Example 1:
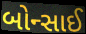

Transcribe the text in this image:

બોન્સાઈ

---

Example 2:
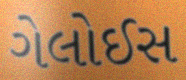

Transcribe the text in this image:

ગેલોઈસ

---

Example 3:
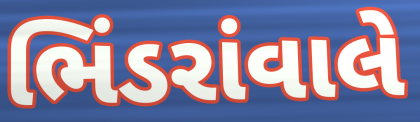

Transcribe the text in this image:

ભિંડરાંવાલે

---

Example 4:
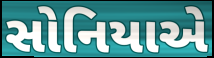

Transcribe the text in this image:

સોનિયાએ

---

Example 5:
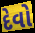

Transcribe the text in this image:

દેવો